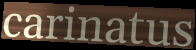
carinatus